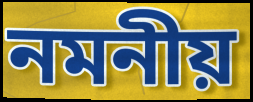
নমনীয়